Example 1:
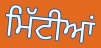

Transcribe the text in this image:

ਮਿੱਟੀਆਂ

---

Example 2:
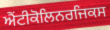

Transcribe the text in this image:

ਐਂਟੀਕੋਲਿਨਰਜਿਕਸ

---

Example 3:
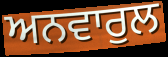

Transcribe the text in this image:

ਅਨਵਾਰੁਲ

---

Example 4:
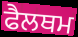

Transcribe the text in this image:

ਫੈਲਥਮ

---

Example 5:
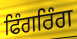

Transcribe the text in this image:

ਫਿੰਗਰਿੰਗ